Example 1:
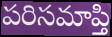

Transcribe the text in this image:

పరిసమాప్తి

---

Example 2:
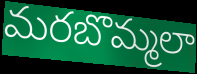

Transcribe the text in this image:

మరబొమ్మలా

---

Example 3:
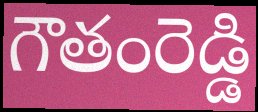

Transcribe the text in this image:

గౌతంరెడ్డి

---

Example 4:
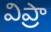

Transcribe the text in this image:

విప్రా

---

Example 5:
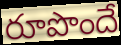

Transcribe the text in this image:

రూపొందే